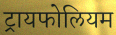
ट्रायफोलियम